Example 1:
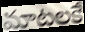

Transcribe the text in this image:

మాటలకే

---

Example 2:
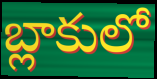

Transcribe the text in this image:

బ్లాకులో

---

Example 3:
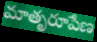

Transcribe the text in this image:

మాతృరూపేణ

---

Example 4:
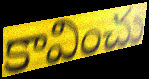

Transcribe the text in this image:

కావించు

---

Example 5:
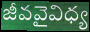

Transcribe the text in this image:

జీవవైవిధ్య